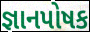
જ્ઞાનપોષક